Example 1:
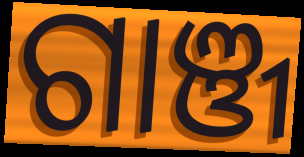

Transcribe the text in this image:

ଗାଞ୍ଜ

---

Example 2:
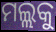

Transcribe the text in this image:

ମଲ୍ଲକୁ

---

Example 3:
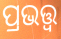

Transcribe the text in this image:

ପ୍ରଭତ୍ତ୍ଵ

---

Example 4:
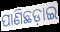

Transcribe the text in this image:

ପାଣିଛଡ଼ାଇ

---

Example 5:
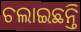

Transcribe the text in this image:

ଚଲାଇଛନ୍ତି